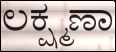
ಲಕ್ಷ್ಮಣಾ